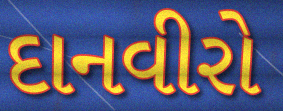
દાનવીરો